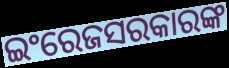
ଇଂରେଜସରକାରଙ୍କ